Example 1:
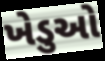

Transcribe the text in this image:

ખેડુઓ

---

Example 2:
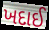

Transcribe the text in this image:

ખદાઈ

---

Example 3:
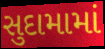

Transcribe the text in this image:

સુદામામાં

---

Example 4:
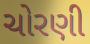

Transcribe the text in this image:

ચોરણી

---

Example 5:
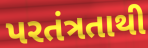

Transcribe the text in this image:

પરતંત્રતાથી